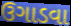
ઉગાડવા